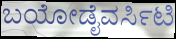
ಬಯೋಡೈವರ್ಸಿಟಿ